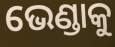
ଭେଣ୍ଡାକୁ